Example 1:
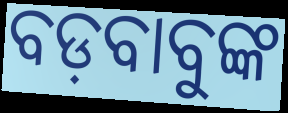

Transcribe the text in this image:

ବଡ଼ବାବୁଙ୍କ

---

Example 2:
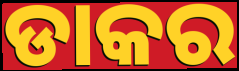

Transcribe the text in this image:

ଡାକର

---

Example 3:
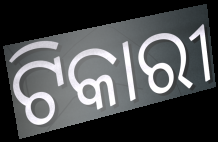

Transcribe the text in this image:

ଟିକାରୀ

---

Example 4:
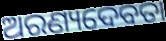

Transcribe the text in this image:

ଅରଣ୍ୟଦେବତା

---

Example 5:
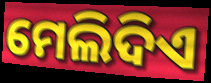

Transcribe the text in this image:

ମେଲିଦିଏ